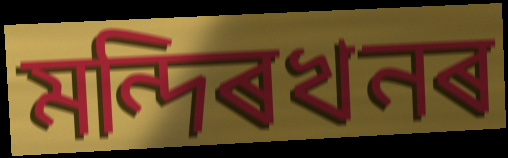
মন্দিৰখনৰ